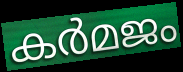
കർമജം